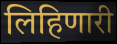
लिहिणारी